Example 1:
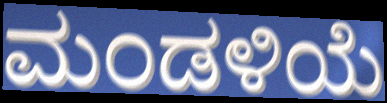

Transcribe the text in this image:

ಮಂಡಳಿಯೆ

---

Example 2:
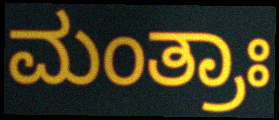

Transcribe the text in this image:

ಮಂತ್ರಾಃ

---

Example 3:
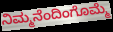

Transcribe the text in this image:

ನಿಮ್ಮನೆಂದಿಂಗೊಮ್ಮೆ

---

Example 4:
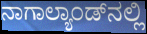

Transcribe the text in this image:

ನಾಗಾಲ್ಯಾಂಡ್‌ನಲ್ಲಿ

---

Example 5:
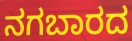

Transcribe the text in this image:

ನಗಬಾರದ